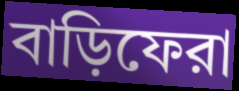
বাড়িফেরা